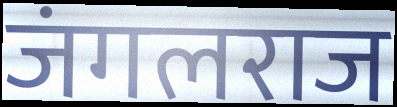
जंगलराज